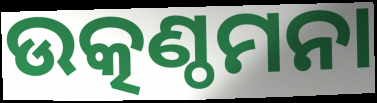
ଉତ୍କଣ୍ଠମନା